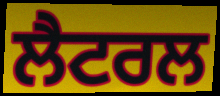
ਲੈਟਰਲ